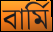
বার্মি